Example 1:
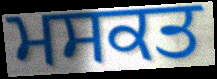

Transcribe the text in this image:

ਮਸਕਤ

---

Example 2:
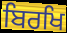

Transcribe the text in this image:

ਬਿਰਖਿ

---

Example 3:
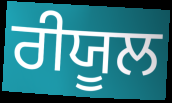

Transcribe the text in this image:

ਰੀਯੂਲ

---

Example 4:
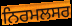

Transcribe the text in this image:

ਨਿਰਮਲਸਰ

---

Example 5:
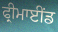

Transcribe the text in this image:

ਫ੍ਰੀਮਾਈਂਡ